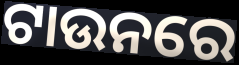
ଟାଉନରେ